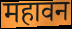
महावन